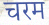
चरम